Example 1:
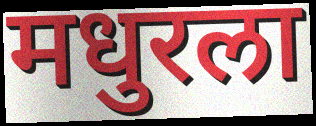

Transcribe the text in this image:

मधुरला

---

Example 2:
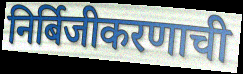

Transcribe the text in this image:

निर्बिजीकरणाची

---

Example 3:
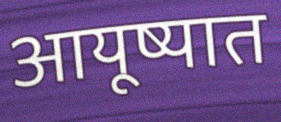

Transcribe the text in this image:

आयूष्यात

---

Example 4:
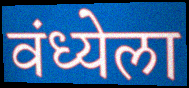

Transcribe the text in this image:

वंध्येला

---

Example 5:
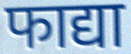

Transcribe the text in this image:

फाद्या